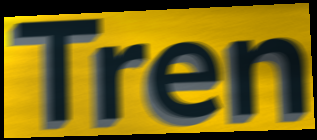
Tren